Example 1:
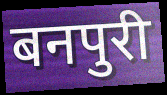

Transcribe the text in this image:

बनपुरी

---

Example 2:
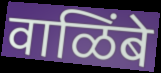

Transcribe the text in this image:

वाळिंबे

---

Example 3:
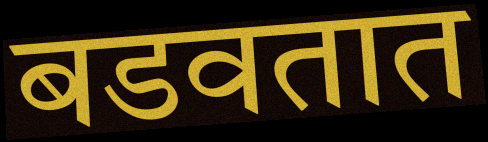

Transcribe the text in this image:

बडवतात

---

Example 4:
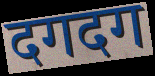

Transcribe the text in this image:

दगदग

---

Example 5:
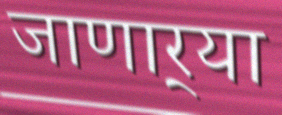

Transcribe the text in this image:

जाणार्या